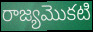
రాజ్యమొకటి